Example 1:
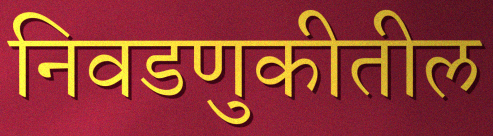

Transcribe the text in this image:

निवडणुकीतील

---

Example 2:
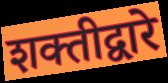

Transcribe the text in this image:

शक्तीद्वारे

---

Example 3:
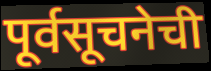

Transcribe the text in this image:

पूर्वसूचनेची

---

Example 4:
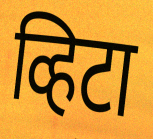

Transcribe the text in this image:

व्हिटा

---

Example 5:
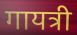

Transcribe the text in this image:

गायत्री